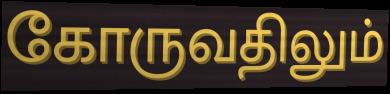
கோருவதிலும்